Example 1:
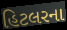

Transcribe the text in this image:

હિટલરના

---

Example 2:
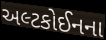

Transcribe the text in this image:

અલ્ટકોઈનના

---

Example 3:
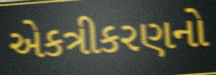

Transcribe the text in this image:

એકત્રીકરણનો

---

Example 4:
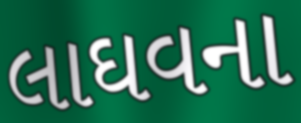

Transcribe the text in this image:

લાઘવના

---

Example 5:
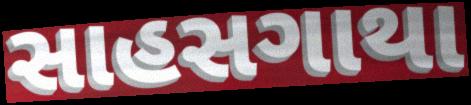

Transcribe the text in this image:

સાહસગાથા